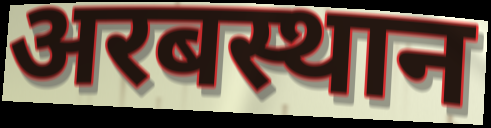
अरबस्थान